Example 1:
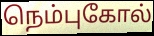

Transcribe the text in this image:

நெம்புகோல்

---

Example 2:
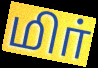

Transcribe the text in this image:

மிர்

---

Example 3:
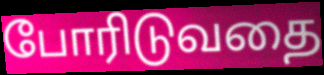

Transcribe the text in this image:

போரிடுவதை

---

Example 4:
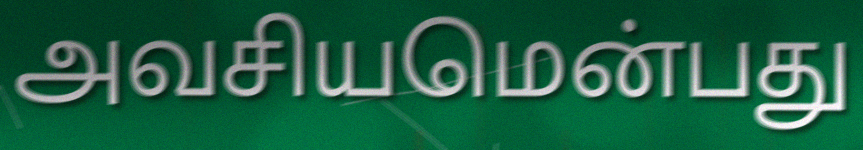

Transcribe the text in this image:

அவசியமென்பது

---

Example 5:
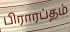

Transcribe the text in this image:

பிராரப்தம்